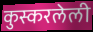
कुस्करलेली